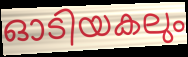
ഓടിയകലും